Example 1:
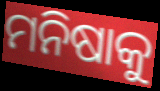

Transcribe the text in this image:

ମନିଷାକୁ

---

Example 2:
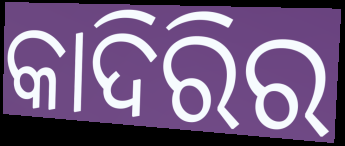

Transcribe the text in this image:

କାଦିରିର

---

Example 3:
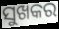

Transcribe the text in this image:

ସୁଖକର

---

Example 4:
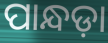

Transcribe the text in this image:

ପାନ୍ଧଡ଼ା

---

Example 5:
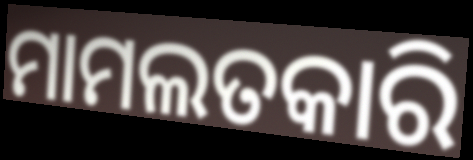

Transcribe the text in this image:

ମାମଲତକାରି